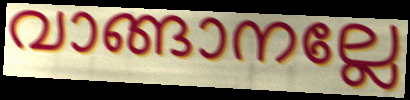
വാങ്ങാനല്ലേ